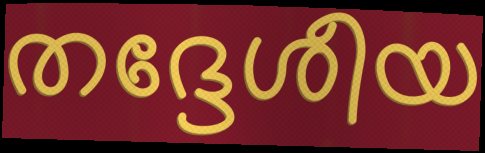
തദ്ദേശീയ